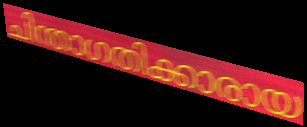
ചിന്താഗതിക്കാരായ